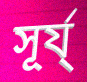
সূৰ্য্